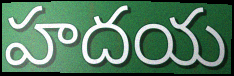
హదయ